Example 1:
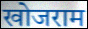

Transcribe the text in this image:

खोजराम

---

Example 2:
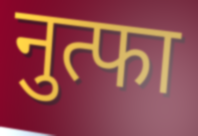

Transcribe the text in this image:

नुत्फा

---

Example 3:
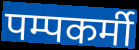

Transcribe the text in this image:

पम्पकर्मी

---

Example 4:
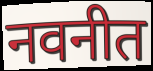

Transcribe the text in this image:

नवनीत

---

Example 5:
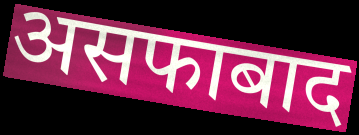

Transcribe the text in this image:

असफाबाद